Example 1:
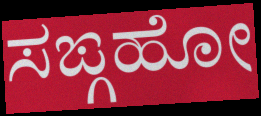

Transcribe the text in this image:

ಸಙ್ಗಹೋ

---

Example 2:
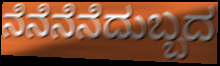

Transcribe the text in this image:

ನೆನೆನೆನೆದುಬ್ಬದ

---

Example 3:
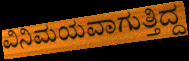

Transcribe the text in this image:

ವಿನಿಮಯವಾಗುತ್ತಿದ್ದ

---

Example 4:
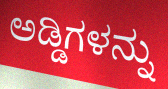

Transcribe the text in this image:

ಅಡ್ಡಿಗಳನ್ನು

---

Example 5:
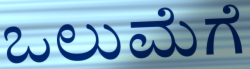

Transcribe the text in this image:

ಒಲುಮೆಗೆ